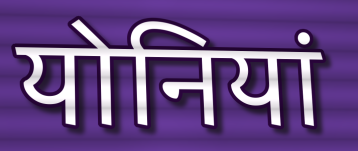
योनियां